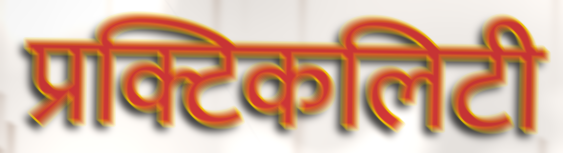
प्रक्टिकलिटी